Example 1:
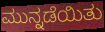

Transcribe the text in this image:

ಮುನ್ನಡೆಯಿತು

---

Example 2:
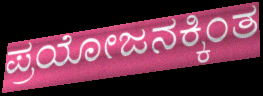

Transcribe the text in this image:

ಪ್ರಯೋಜನಕ್ಕಿಂತ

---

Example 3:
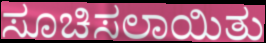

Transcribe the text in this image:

ಸೂಚಿಸಲಾಯಿತು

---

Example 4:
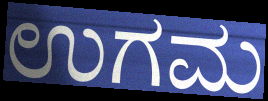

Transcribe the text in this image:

ಉಗಮ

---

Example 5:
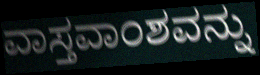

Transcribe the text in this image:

ವಾಸ್ತವಾಂಶವನ್ನು